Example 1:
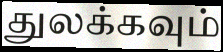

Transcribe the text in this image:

துலக்கவும்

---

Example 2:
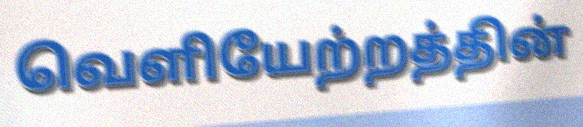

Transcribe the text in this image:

வெளியேற்றத்தின்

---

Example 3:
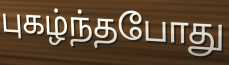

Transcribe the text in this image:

புகழ்ந்தபோது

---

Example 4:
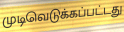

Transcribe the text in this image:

முடிவெடுக்கப்பட்டது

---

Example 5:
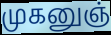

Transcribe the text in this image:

முகனுஞ்